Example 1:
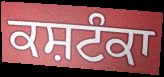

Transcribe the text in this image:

ਕਸ਼ਟੰਕਾ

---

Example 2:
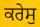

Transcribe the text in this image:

ਕਰੇਸੁ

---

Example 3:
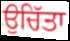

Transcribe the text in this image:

ਉਚਿੱਤਾ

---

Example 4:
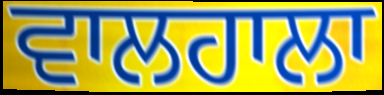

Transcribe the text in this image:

ਵਾਲਹਾਲਾ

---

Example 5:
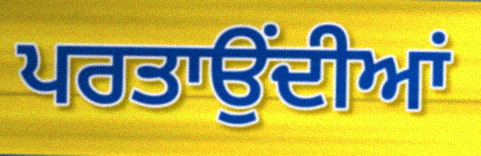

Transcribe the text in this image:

ਪਰਤਾਉਂਦੀਆਂ